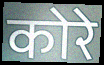
कोरे